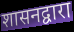
शासनद्वारा